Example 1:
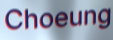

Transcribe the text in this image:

Choeung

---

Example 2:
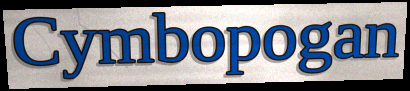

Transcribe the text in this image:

Cymbopogan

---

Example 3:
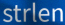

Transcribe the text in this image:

strlen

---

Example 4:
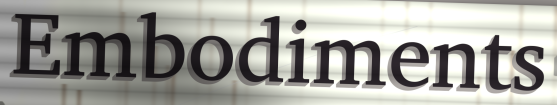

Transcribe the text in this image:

Embodiments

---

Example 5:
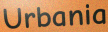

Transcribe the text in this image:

Urbania